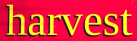
harvest